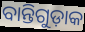
ବାନ୍ତିଗୁଡ଼ାକ